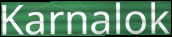
Karnalok